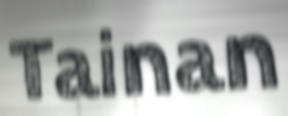
Tainan